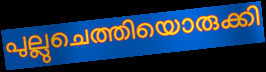
പുല്ലുചെത്തിയൊരുക്കി